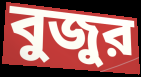
বুজুর